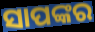
ସାପଙ୍କର